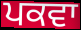
ਪਕਵਾ